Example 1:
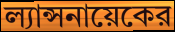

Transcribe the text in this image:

ল্যান্সনায়েকের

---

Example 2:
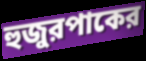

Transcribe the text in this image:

হুজুরপাকের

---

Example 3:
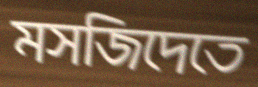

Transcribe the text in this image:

মসজিদেতে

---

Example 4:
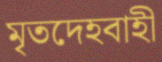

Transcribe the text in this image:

মৃতদেহবাহী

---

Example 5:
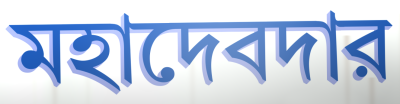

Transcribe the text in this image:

মহাদেবদার